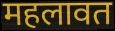
महलावत